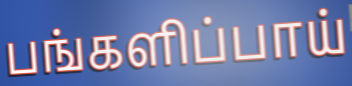
பங்களிப்பாய்